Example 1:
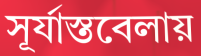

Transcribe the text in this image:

সূর্যাস্তবেলায়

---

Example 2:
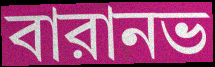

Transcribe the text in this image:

বারানভ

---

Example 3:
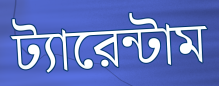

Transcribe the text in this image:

ট্যারেন্টাম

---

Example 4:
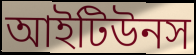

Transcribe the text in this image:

আইটিউনস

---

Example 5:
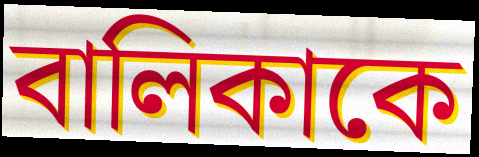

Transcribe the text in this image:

বালিকাকে